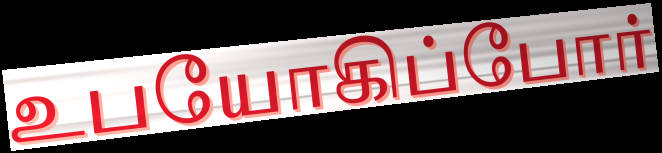
உபயோகிப்போர்